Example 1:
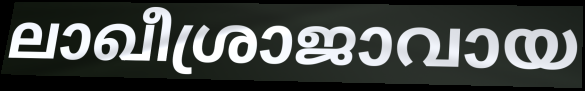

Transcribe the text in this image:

ലാഖീശ്രാജാവായ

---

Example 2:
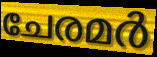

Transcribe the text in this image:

ചേരമർ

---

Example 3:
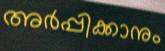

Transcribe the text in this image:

അർപ്പിക്കാനും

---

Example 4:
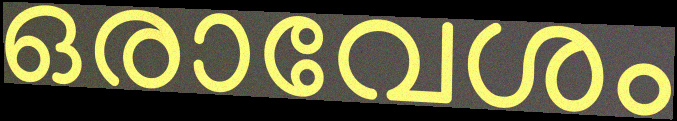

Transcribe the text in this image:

ഒരാവേശം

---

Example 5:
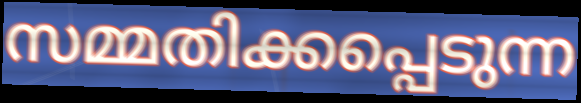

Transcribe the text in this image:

സമ്മതിക്കപ്പെടുന്ന